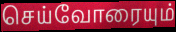
செய்வோரையும்